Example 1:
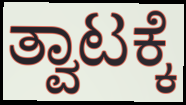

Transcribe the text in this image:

ತ್ವಾಟಕ್ಕೆ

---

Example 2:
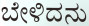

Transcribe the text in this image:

ಬೇಳಿದನು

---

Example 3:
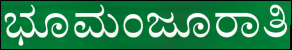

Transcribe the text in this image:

ಭೂಮಂಜೂರಾತಿ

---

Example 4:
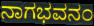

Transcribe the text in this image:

ನಾಗಭವನಂ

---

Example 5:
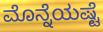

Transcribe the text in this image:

ಮೊನ್ನೆಯಷ್ಟೆ